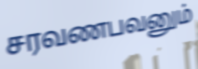
சரவணபவனும்